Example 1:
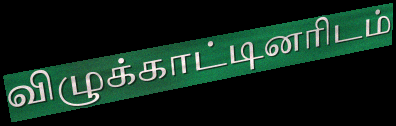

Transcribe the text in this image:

விழுக்காட்டினரிடம்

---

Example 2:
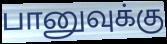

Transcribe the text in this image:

பானுவுக்கு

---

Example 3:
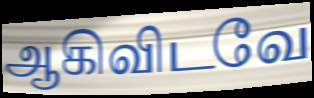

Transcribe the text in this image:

ஆகிவிடவே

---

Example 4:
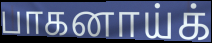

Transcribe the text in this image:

பாகனாய்க்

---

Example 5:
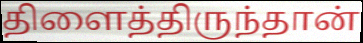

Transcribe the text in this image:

திளைத்திருந்தான்